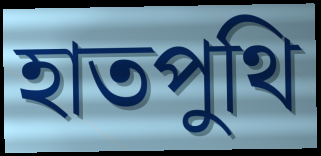
হাতপুথি